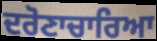
ਦਰੋਣਾਚਾਰਿਆ